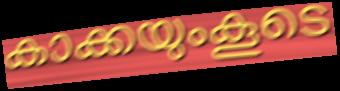
കാക്കയുംകൂടെ